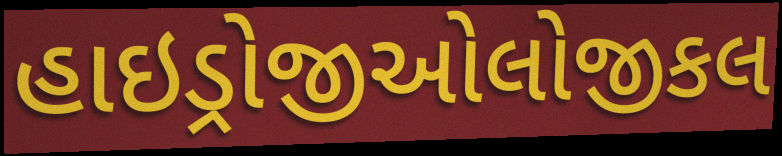
હાઇડ્રોજીઓલોજીકલ